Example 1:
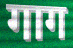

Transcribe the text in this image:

गाग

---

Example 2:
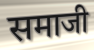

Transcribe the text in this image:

समाजी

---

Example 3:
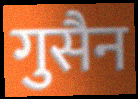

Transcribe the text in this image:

गुसैन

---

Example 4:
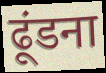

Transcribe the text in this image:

ढूंडना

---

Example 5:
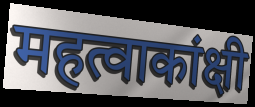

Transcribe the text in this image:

महत्‍वाकांक्षी